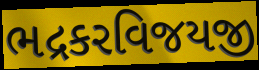
ભદ્રકરવિજયજી